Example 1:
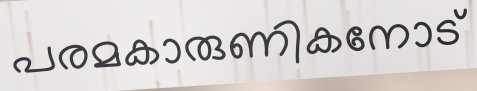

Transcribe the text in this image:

പരമകാരുണികനോട്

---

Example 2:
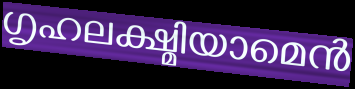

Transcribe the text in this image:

ഗൃഹലക്ഷ്മിയാമെൻ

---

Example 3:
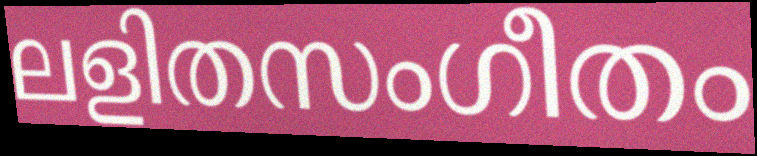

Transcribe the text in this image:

ലളിതസംഗീതം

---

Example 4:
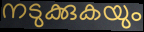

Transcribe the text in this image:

നടുക്കുകയും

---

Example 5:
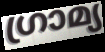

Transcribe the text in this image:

ഗ്രാമ്യ